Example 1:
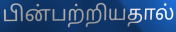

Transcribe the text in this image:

பின்பற்றியதால்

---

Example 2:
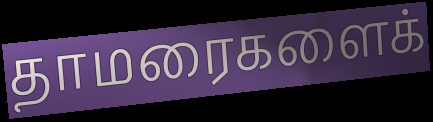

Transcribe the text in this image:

தாமரைகளைக்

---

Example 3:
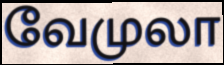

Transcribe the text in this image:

வேமுலா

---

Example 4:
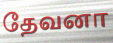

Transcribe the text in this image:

தேவனா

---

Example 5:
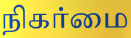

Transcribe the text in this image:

நிகர்மை